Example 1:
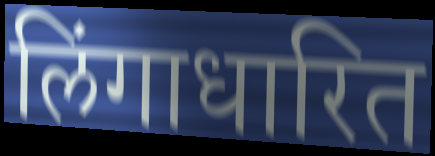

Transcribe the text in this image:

लिंगाधारित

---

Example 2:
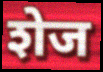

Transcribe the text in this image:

शेज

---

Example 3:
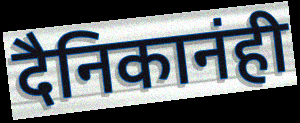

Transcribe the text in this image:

दैनिकानंही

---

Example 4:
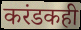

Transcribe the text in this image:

करंडकही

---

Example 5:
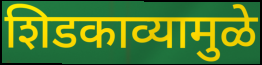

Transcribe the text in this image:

शिडकाव्यामुळे